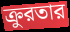
ক্রুরতার